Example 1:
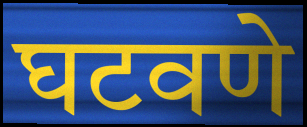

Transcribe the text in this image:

घटवणे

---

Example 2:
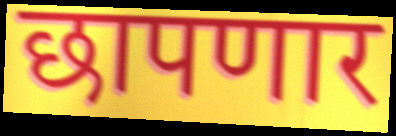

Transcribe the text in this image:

छापणार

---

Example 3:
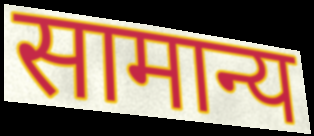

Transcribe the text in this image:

सामान्य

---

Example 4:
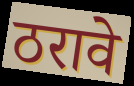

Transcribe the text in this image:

ठरावे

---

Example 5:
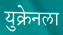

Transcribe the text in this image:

युक्रेनला